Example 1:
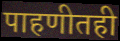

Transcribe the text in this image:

पाहणीतही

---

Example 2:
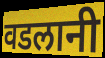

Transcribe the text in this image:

वडलानी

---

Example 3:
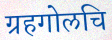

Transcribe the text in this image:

ग्रहगोलचि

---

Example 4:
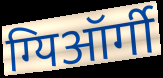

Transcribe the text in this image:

ग्यिऑर्गी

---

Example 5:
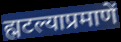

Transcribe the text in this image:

ह्मटल्याप्रमाणें